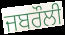
ਜਬਰੌਲੀ